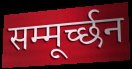
सम्मूर्च्छन